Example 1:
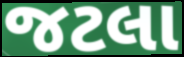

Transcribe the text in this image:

જટલા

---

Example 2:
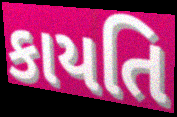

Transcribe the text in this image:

કાયતિ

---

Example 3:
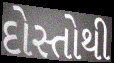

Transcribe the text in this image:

દોસ્તોથી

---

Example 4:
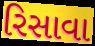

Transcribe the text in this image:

રિસાવા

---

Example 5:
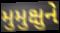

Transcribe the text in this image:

મુમુક્ષુને